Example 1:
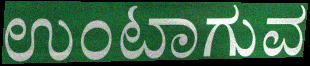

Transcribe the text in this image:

ಉಂಟಾಗುವ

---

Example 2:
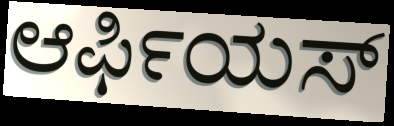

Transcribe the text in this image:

ಆರ್ಫಿಯಸ್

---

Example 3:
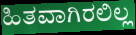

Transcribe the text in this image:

ಹಿತವಾಗಿರಲಿಲ್ಲ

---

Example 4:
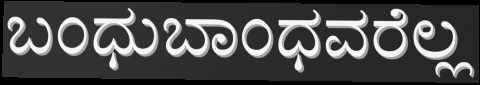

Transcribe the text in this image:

ಬಂಧುಬಾಂಧವರೆಲ್ಲ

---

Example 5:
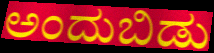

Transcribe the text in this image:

ಅಂದುಬಿಡು